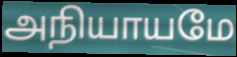
அநியாயமே